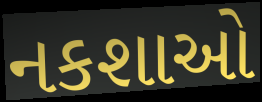
નકશાઓ